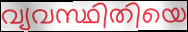
വ്യവസ്ഥിതിയെ